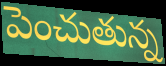
పెంచుతున్న